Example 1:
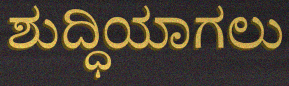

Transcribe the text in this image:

ಶುದ್ಧಿಯಾಗಲು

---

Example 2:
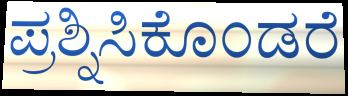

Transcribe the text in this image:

ಪ್ರಶ್ನಿಸಿಕೊಂಡರೆ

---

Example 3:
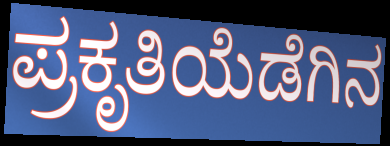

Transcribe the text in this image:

ಪ್ರಕೃತಿಯೆಡೆಗಿನ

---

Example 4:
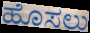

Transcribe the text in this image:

ಹೊಸಲು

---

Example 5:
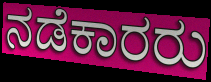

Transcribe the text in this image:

ನಡೆಕಾರರು